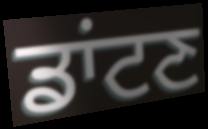
ਡਾਂਟਣ